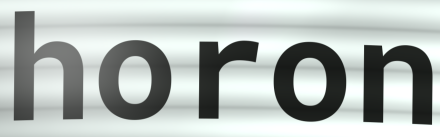
horon